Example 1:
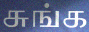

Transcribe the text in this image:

சுங்க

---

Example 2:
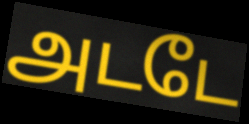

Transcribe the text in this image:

அடடே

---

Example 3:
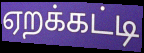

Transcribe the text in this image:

ஏறக்கட்டி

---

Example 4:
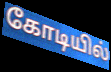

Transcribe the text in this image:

கோடியில்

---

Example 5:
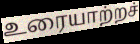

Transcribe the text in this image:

உரையாற்றச்